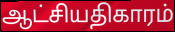
ஆட்சியதிகாரம்